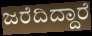
ಜರೆದಿದ್ದಾರೆ